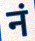
नं